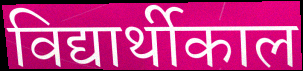
विद्यार्थीकाल